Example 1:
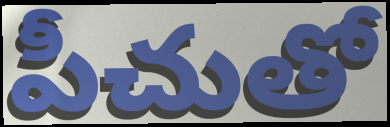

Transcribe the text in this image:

పీచుతో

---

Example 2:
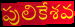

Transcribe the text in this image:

పులికేశవ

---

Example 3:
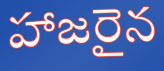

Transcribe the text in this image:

హాజరైన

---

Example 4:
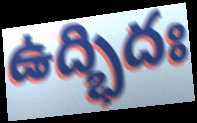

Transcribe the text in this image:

ఉద్భిదః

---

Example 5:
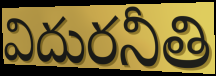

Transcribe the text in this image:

విదురనీతి